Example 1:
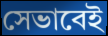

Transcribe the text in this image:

সেভাবেই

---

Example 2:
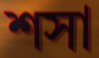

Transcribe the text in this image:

শসা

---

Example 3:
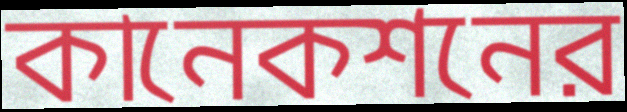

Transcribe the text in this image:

কানেকশনের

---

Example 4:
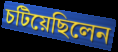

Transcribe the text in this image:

চটিয়েছিলেন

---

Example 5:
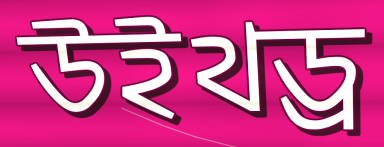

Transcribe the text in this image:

উইথড্র